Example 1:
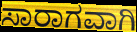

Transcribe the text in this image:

ಸಾರಾಗವಾಗಿ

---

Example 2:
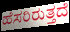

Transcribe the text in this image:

ಹೆಸರಿರುತ್ತದೆ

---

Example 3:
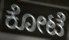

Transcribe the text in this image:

ಕೋಟೆ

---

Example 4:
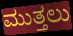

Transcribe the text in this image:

ಮುತ್ತಲು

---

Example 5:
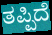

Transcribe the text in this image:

ತಪ್ಪಿದೆ